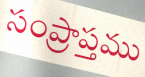
సంప్రాప్తము